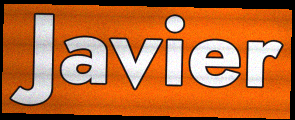
Javier